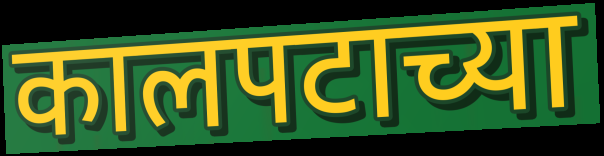
कालपटाच्या